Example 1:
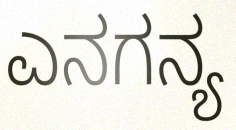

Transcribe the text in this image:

ಎನಗನ್ಯ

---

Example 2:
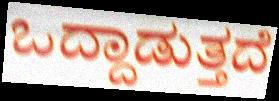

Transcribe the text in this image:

ಒದ್ದಾಡುತ್ತದೆ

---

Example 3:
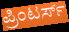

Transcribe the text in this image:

ಪ್ರಿಂಟರ್ಸ್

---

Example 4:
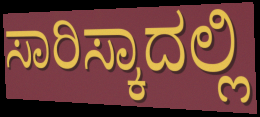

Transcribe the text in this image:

ಸಾರಿಸ್ಕಾದಲ್ಲಿ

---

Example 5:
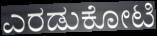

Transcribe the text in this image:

ಎರಡುಕೋಟಿ